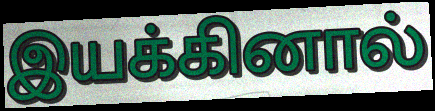
இயக்கினால்